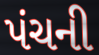
પંચની